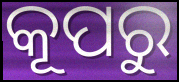
କୂପରୁ